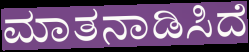
ಮಾತನಾಡಿಸಿದೆ